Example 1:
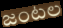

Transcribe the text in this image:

జంటల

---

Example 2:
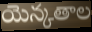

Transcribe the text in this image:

యెన్కతాల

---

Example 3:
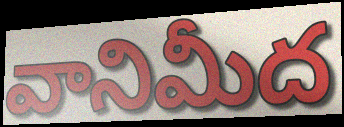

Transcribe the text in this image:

వానిమీద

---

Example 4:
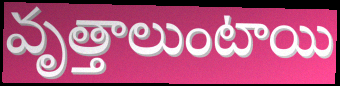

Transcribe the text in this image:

వృత్తాలుంటాయి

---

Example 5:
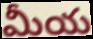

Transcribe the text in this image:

మీయ